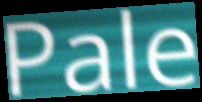
Pale